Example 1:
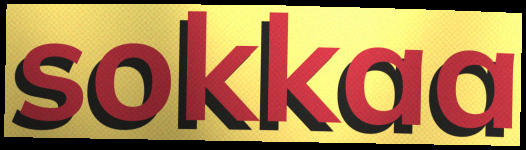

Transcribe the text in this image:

sokkaa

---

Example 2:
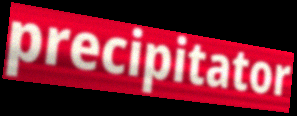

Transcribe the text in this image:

precipitator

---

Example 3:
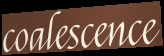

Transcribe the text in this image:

coalescence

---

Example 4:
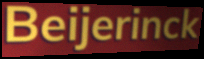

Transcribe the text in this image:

Beijerinck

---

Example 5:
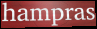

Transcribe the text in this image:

hampras